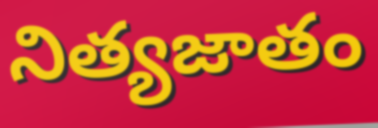
నిత్యజాతం